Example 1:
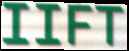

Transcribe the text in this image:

IIFT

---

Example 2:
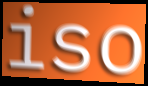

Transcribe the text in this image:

iso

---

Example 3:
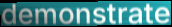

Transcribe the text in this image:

demonstrate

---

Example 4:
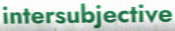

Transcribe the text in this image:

intersubjective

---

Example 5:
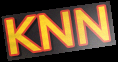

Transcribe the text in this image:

KNN